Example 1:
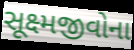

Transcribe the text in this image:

સૂક્ષ્મજીવોના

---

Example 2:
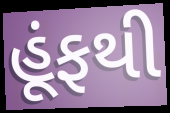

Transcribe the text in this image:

હૂંફથી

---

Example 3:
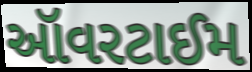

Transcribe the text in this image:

ઑવરટાઈમ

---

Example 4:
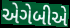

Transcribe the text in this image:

એગેબીએ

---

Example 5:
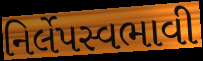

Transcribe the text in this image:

નિર્લેપસ્વભાવી